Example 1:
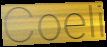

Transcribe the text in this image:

Coeli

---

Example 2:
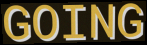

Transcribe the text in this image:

GOING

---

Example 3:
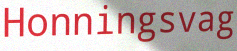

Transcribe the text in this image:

Honningsvag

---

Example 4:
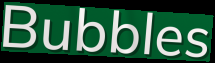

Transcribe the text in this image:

Bubbles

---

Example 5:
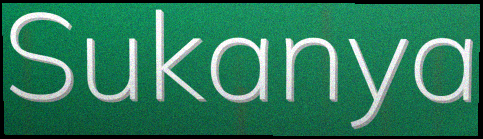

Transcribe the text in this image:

Sukanya